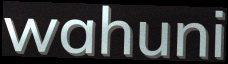
wahuni